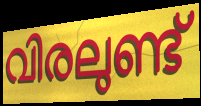
വിരലുണ്ട്